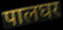
पालघर